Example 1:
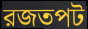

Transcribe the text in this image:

রজতপট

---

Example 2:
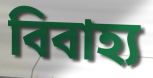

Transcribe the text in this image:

বিবাহ্য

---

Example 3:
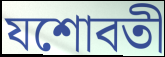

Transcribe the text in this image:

যশোবতী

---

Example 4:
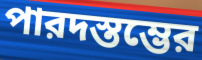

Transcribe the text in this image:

পারদস্তম্ভের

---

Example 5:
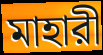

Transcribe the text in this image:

মাহারী